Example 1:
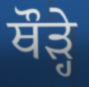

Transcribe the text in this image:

ਥੌੜ੍ਹੇ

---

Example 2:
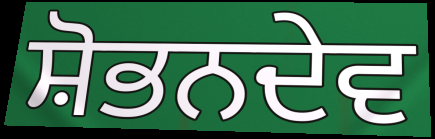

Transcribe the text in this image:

ਸ਼ੋਭਨਦੇਵ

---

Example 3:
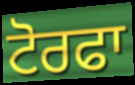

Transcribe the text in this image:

ਟੋਰਫਾ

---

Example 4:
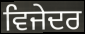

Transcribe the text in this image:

ਵਿਜੇਦਰ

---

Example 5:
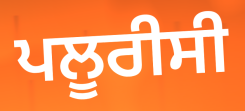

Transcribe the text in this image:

ਪਲੂਰੀਸੀ